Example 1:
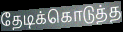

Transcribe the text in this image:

தேடிக்கொடுத்த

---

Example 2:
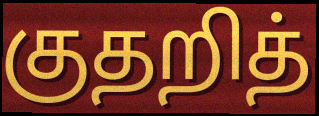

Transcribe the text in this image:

குதறித்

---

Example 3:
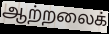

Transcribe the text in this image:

ஆற்றலைக்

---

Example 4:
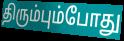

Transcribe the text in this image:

திரும்பும்போது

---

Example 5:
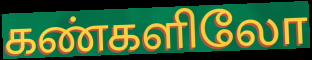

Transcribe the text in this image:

கண்களிலோ